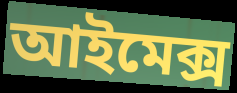
আইমেক্স